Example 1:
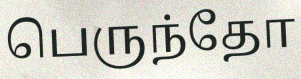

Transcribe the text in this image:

பெருந்தோ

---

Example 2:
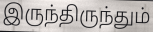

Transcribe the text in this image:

இருந்திருந்தும்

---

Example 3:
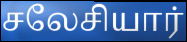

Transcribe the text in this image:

சலேசியார்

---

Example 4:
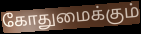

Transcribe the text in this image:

கோதுமைக்கும்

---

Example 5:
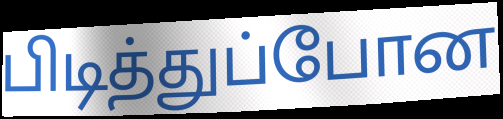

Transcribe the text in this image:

பிடித்துப்போன